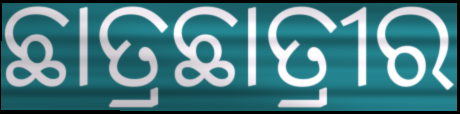
ଛାତ୍ରଛାତ୍ରୀର